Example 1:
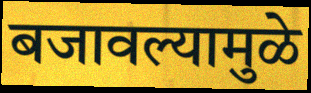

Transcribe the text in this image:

बजावल्यामुळे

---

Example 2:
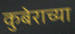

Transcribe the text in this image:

कुबेराच्या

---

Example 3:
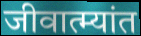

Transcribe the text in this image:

जीवात्म्यांत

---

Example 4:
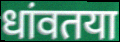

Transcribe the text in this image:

धांवतया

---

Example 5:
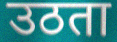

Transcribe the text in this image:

उठता